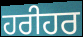
ਹਰੀਹਰ